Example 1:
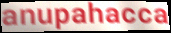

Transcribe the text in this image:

anupahacca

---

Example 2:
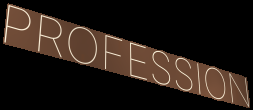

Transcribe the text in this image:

PROFESSION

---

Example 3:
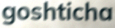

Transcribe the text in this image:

goshticha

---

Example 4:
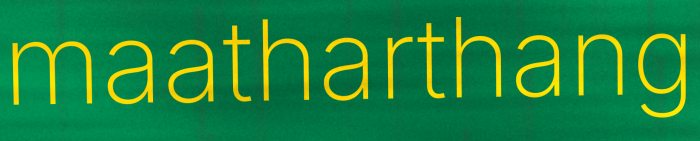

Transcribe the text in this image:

maatharthang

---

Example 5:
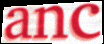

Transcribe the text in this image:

anc